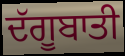
ਦੱਗੂਬਾਤੀ